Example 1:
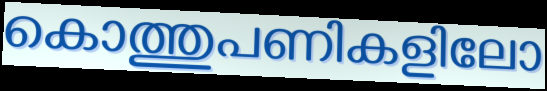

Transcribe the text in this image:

കൊത്തുപണികളിലോ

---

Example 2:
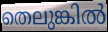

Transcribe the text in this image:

തെലുങ്കിൽ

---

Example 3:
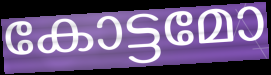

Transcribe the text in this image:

കോട്ടമോ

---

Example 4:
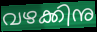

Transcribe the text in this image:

വഴക്കിനു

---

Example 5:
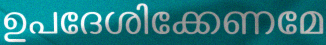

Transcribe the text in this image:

ഉപദേശിക്കേണമേ